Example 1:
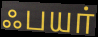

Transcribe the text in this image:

ஃபயர்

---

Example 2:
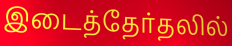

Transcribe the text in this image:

இடைத்தேர்தலில்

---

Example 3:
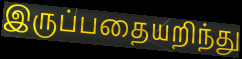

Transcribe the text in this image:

இருப்பதையறிந்து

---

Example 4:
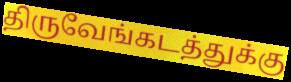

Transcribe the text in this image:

திருவேங்கடத்துக்கு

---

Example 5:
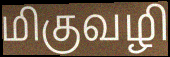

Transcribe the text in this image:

மிகுவழி